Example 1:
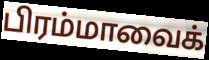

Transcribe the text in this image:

பிரம்மாவைக்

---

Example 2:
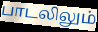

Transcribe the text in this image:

பாடலிலும்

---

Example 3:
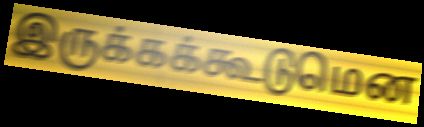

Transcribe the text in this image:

இருக்கக்கூடுமென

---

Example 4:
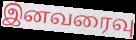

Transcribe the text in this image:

இனவரைவு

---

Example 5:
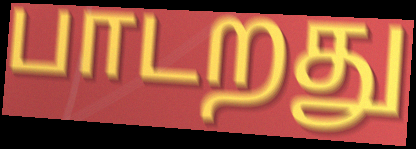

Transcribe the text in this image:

பாடறது